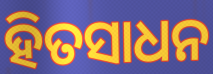
ହିତସାଧନ